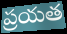
ప్రయత